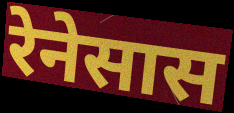
रेनेसास